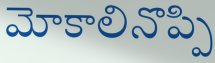
మోకాలినొప్పి